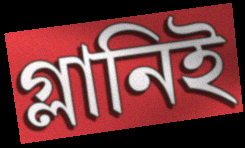
গ্লানিই